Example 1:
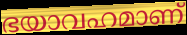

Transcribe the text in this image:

ഭയാവഹമാണ്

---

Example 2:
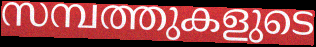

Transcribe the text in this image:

സമ്പത്തുകളുടെ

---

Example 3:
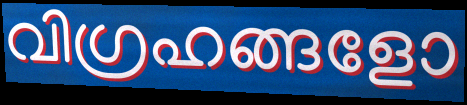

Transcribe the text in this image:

വിഗ്രഹങ്ങളോ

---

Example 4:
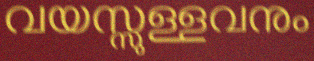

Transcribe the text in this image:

വയസ്സുള്ളവനും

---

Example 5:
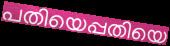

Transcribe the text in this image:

പതിയെപ്പതിയെ